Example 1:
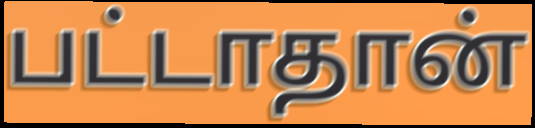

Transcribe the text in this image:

பட்டாதான்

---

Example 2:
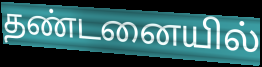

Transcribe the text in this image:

தண்டனையில்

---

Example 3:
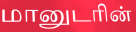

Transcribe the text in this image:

மானுடரின்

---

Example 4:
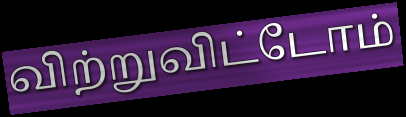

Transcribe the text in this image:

விற்றுவிட்டோம்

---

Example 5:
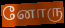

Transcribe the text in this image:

னோரு